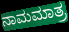
ನಾಮಮಾತ್ರ